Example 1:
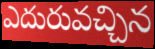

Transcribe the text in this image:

ఎదురువచ్చిన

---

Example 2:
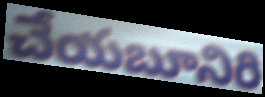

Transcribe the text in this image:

చేయబూనిరి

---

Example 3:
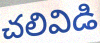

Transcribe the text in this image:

చలివిడి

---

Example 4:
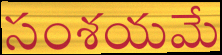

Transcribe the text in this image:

సంశయమే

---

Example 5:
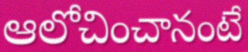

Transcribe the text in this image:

ఆలోచించానంటే